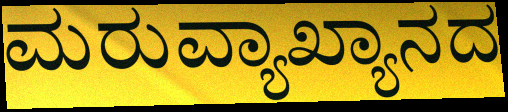
ಮರುವ್ಯಾಖ್ಯಾನದ